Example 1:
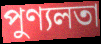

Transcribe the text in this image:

পুণ্যলতা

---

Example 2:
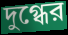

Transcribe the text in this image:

দুগ্ধের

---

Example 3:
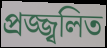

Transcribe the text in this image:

প্রজ্জ্বলিত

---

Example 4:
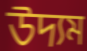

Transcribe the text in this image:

উদ্যম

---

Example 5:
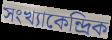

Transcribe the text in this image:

সংখ্যাকেন্দ্রিক